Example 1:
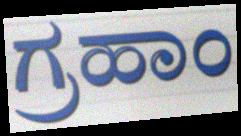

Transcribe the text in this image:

ಗ್ರಹಾಂ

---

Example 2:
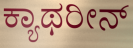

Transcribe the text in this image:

ಕ್ಯಾಥರೀನ್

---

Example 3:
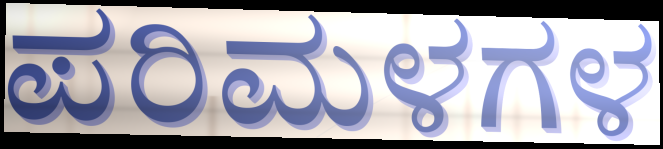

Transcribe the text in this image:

ಪರಿಮಳಗಳ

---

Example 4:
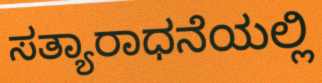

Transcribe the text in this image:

ಸತ್ಯಾರಾಧನೆಯಲ್ಲಿ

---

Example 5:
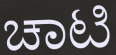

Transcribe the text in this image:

ಚಾಟಿ